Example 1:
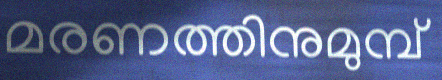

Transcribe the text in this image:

മരണത്തിനുമുമ്പ്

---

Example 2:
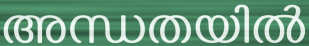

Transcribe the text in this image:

അന്ധതയിൽ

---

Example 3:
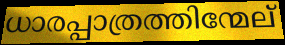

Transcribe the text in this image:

ധാരപ്പാത്രത്തിന്മേല്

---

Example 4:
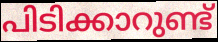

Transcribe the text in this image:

പിടിക്കാറുണ്ട്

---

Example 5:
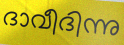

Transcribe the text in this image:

ദാവീദിന്നു